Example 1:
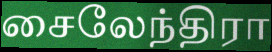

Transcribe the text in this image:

சைலேந்திரா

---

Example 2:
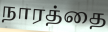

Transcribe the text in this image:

நாரத்தை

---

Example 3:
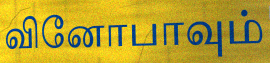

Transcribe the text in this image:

வினோபாவும்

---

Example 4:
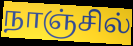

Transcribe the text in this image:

நாஞ்சில்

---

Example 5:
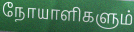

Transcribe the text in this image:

நோயாளிகளும்